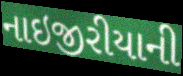
નાઇજીરીયાની